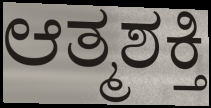
ಆತ್ಮಶಕ್ತಿ